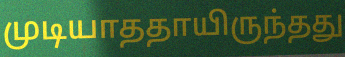
முடியாததாயிருந்தது